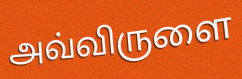
அவ்விருளை